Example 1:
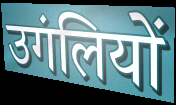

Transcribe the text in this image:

उगंलियों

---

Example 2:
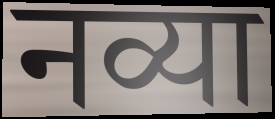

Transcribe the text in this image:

नव्या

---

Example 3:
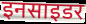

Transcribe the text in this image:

इनसाइडर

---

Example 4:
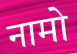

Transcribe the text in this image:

नामो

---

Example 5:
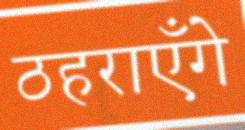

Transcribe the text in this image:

ठहराएँगे